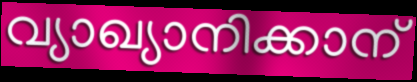
വ്യാഖ്യാനിക്കാന്